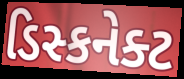
ડિસ્કનેક્ટ